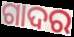
ଗାଦର